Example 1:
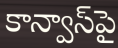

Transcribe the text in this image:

కాన్వాస్‌పై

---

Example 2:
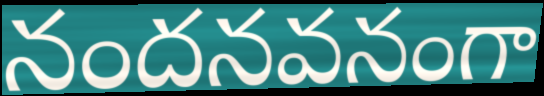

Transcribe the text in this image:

నందనవనంగా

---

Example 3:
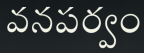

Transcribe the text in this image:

వనపర్వం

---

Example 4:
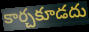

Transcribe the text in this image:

కార్చకూడదు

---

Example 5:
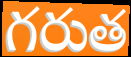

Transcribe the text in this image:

గరుత